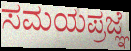
ಸಮಯಪ್ರಜ್ಞೆ